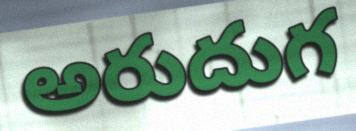
అరుదుగ